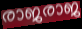
രാജരാജ